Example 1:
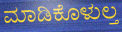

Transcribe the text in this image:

ಮಾಡಿಕೊಳುಲ್ತ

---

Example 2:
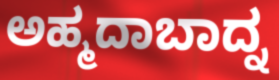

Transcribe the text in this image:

ಅಹ್ಮದಾಬಾದ್ನ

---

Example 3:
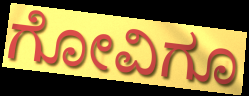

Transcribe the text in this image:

ಗೋವಿಗೂ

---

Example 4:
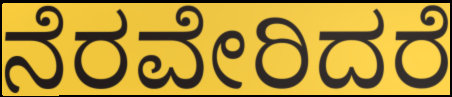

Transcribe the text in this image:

ನೆರವೇರಿದರೆ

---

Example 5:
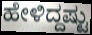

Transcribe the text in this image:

ಹೇಳಿದ್ದಷ್ಟು